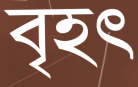
বৃহৎ